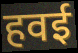
हवई